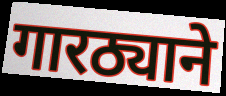
गारठ्याने